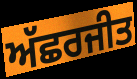
ਅੱਛਰਜੀਤ